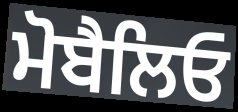
ਮੋਬੈਲਿਓ